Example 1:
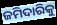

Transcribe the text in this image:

ଜମିଦାରିକୁ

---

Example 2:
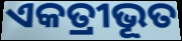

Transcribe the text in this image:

ଏକତ୍ରୀଭୂତ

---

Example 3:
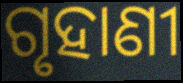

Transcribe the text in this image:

ଗୃହାଣୀ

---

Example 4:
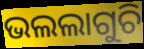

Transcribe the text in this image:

ଭଲଲାଗୁଚି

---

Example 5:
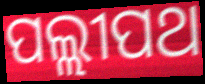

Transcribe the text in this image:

ପଲ୍ଲୀପଥ